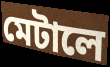
মেটালে